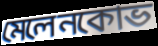
মেলেনকোভ